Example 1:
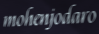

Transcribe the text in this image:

mohenjodaro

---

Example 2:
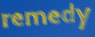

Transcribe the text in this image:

remedy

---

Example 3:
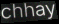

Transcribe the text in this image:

chhay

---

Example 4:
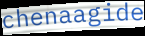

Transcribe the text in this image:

chenaagide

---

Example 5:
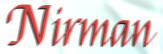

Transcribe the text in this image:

Nirman